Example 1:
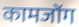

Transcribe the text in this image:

कामजोंग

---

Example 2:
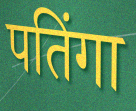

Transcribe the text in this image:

पतिंगा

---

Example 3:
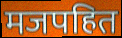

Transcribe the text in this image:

मजपहित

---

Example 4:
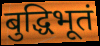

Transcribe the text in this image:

बुद्धिभूतं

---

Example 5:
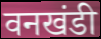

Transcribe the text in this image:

वनखंडी